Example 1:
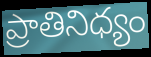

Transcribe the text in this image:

ప్రాతినిధ్యం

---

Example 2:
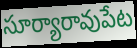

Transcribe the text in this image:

సూర్యారావుపేట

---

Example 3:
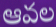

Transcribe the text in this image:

ఆవల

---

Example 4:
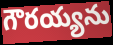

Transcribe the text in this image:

గౌరయ్యను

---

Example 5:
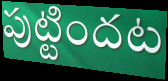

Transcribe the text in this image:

పుట్టిందట